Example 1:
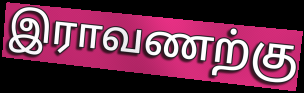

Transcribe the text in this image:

இராவணற்கு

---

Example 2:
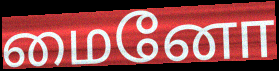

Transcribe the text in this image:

மைனோ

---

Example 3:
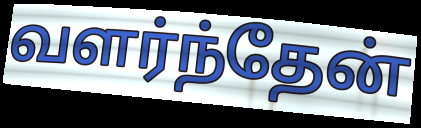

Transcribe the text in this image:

வளர்ந்தேன்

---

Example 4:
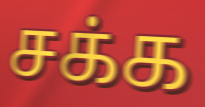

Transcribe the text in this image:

சக்க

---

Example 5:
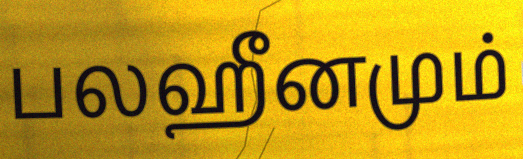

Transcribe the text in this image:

பலஹீனமும்